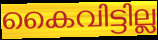
കൈവിട്ടില്ല